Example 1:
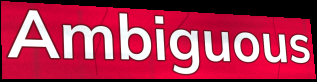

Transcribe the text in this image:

Ambiguous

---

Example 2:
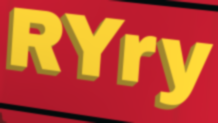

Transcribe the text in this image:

RYry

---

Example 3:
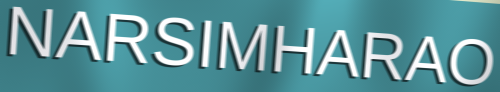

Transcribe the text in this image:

NARSIMHARAO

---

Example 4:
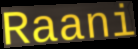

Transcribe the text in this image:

Raani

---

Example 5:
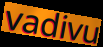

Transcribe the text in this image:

vadivu